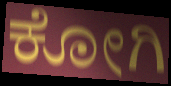
ಕೋಗಿ